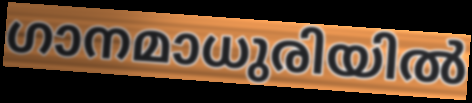
ഗാനമാധുരിയിൽ